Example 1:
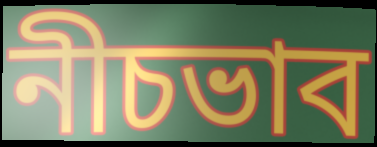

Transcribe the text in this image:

নীচভাব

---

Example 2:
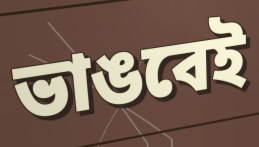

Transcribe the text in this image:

ভাঙবেই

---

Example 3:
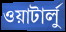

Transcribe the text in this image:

ওয়াটার্লু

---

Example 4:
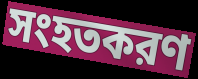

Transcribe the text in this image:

সংহতকরণ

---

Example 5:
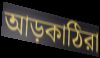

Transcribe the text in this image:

আড়কাঠিরা